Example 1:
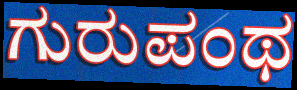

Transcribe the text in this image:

ಗುರುಪಂಥ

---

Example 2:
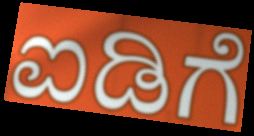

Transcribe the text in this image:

ಐಡಿಗೆ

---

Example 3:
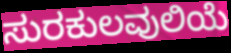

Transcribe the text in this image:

ಸುರಕುಲವುಲಿಯೆ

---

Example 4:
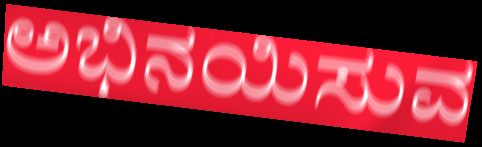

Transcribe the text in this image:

ಅಭಿನಯಿಸುವ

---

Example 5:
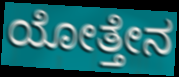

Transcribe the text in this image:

ಯೋತ್ತೇನ